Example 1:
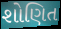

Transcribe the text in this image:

શોણિત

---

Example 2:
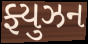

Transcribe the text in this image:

ફ્યુઝન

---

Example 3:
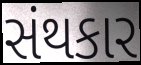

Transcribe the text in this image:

સંથકાર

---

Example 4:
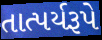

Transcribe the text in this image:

તાત્પર્યરૂપે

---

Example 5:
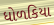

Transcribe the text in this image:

ધોળકિયા